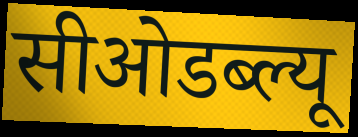
सीओडब्ल्यू